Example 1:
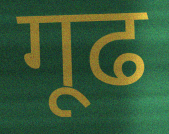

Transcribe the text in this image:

गूढ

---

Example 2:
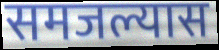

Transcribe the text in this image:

समजल्यास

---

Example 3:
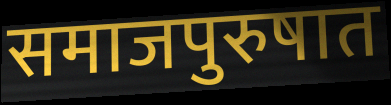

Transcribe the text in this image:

समाजपुरुषात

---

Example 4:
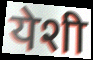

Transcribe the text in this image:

येशी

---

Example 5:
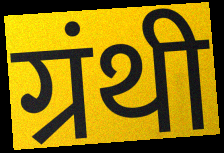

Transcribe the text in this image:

ग्रंथी